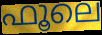
ഫൂലെ